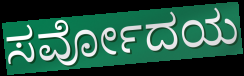
ಸರ್ವೋದಯ